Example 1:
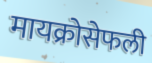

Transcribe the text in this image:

मायक्रोसेफली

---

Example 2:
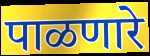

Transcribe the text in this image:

पाळणारे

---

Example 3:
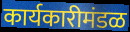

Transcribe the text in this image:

कार्यकारीमंडळ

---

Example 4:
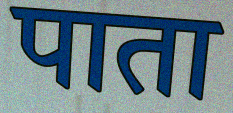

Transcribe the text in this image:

पाता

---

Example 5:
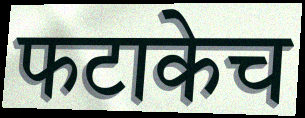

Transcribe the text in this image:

फटाकेच